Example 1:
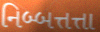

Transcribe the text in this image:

નિબ્બત્તત્તા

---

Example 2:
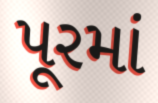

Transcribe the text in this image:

પૂરમાં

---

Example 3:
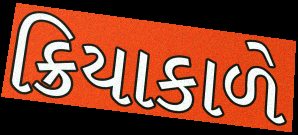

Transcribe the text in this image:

ક્રિયાકાળે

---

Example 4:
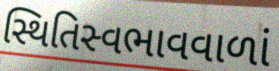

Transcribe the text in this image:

સ્થિતિસ્વભાવવાળાં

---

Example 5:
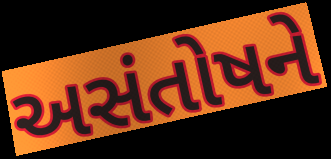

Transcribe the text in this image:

અસંતોષને